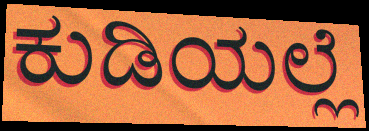
ಕುಡಿಯಲ್ಲೆ